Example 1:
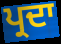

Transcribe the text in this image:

ਪ੍ਰਦਾ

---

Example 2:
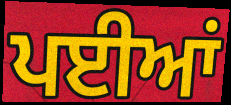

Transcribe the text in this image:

ਪਈਆਂ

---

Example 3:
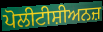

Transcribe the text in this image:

ਪੋਲੀਟੀਸ਼ੀਅਨਜ਼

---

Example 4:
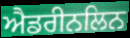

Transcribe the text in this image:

ਐਡਰੀਨਲਿਨ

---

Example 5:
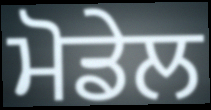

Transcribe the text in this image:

ਮੋਡੇਲ